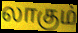
லாகும்